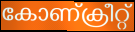
കോണ്ക്രീറ്റ്